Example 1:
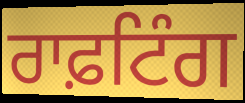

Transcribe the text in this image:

ਰਾਫ਼ਟਿੰਗ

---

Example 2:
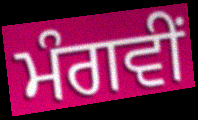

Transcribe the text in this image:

ਮੰਗਵੀਂ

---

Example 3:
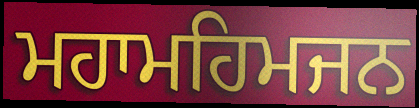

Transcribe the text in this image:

ਮਹਾਮਹਿਮਜਨ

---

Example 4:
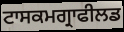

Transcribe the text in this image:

ਟਾਸਕਮਗ੍ਰਾਫੀਲਡ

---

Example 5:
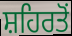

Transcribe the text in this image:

ਸ਼ਹਿਰਤੋਂ